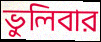
ভুলিবার